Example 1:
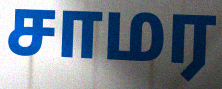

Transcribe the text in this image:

சாமர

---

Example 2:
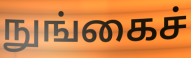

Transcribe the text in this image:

நுங்கைச்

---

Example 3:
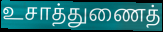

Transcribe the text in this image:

உசாத்துணைத்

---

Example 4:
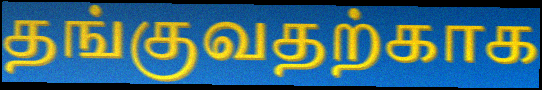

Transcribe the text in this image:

தங்குவதற்காக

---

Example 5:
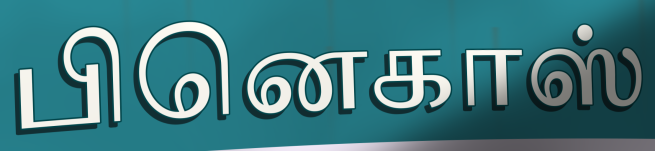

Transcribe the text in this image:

பினெகாஸ்